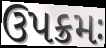
ઉપક્રમઃ